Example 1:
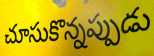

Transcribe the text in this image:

చూసుకొన్నప్పుడు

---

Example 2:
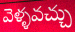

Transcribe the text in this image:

వెళ్ళవచ్చు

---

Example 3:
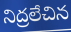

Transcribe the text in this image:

నిద్రలేచిన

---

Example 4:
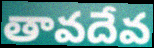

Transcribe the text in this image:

తావదేవ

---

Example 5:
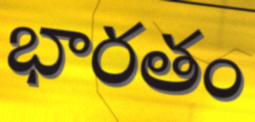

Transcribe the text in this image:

భారతం